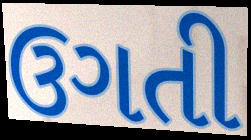
ઉગતી